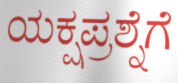
ಯಕ್ಷಪ್ರಶ್ನೆಗೆ